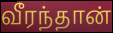
வீரந்தான்